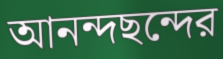
আনন্দছন্দের